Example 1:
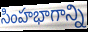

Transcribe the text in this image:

సింహభాగాన్ని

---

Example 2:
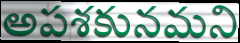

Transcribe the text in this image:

అపశకునమని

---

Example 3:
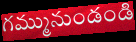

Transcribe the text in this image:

గమ్మునుండండి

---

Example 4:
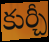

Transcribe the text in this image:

కుర్చీ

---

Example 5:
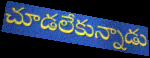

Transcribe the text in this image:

చూడలేకున్నాడు